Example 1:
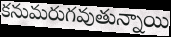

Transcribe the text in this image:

కనుమరుగవుతున్నాయి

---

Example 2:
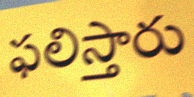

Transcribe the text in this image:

ఫలిస్తారు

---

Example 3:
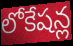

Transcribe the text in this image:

లోకేషన్ల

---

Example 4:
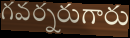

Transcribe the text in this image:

గవర్నరుగారు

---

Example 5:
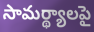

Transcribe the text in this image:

సామర్థ్యాలపై